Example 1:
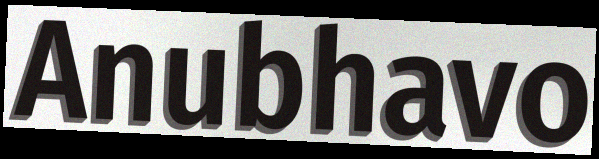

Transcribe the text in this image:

Anubhavo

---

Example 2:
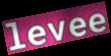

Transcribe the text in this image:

levee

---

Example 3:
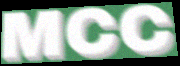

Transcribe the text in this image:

MCC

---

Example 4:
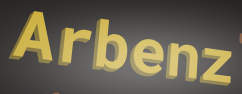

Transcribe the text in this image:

Arbenz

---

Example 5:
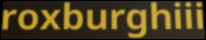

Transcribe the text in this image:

roxburghiii